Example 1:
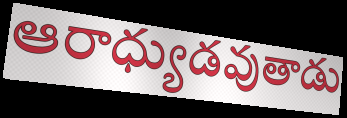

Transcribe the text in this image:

ఆరాధ్యుడవుతాడు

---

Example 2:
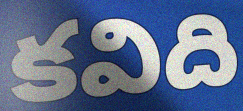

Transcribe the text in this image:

కవిది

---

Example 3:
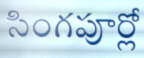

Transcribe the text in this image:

సింగపూర్లో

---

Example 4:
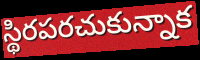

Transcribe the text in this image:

స్థిరపరచుకున్నాక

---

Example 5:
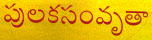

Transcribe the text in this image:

పులకసంవృతా